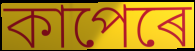
কাপেৰে